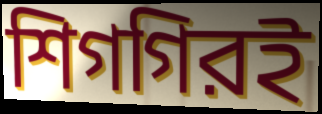
শিগগিরই